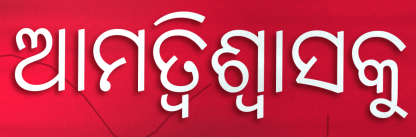
ଆମତ୍ବିଶ୍ୱାସକୁ